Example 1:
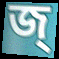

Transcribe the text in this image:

জ্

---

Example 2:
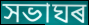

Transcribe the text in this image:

সভাঘৰ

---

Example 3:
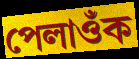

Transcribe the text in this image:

পেলাওঁক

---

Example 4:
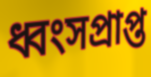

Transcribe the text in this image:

ধ্বংসপ্ৰাপ্ত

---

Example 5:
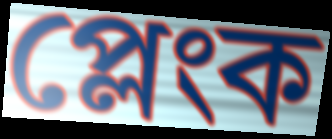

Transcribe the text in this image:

প্লেংক